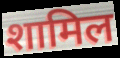
शामिल